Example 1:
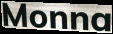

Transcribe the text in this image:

Monna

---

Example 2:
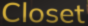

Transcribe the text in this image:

Closet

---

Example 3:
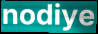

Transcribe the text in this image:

nodiye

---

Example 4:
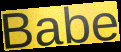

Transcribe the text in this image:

Babe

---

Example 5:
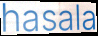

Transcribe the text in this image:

hasala